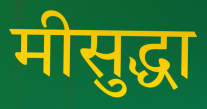
मीसुद्धा